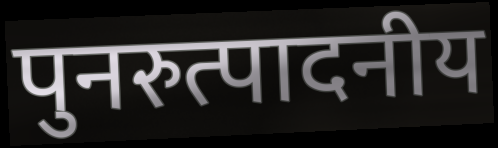
पुनरुत्पादनीय